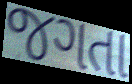
જગતા